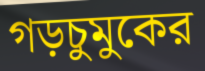
গড়চুমুকের